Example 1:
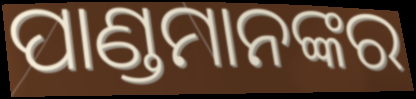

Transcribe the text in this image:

ପାଣ୍ଡମାନଙ୍କର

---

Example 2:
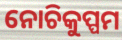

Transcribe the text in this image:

ନୋଚିକୁପ୍ପମ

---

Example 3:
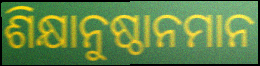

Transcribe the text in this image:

ଶିକ୍ଷାନୁଷ୍ଠାନମାନ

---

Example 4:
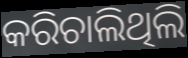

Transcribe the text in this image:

କରିଚାଲିଥିଲି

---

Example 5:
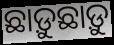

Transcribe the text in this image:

ଛାଡ଼ୁଛାଡ଼ୁ